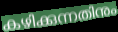
കഴിക്കുന്നതിനും